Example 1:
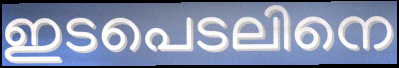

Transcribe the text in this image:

ഇടപെടലിനെ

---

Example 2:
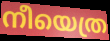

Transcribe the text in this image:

നീയെത്ര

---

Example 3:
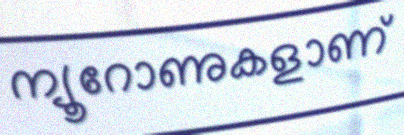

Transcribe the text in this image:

ന്യൂറോണുകളാണ്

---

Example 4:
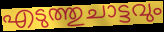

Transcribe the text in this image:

എടുത്തുചാട്ടവും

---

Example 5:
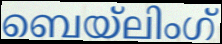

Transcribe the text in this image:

ബെയ്ലിംഗ്